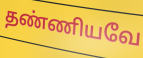
தண்ணியவே